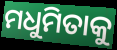
ମଧୁମିତାକୁ